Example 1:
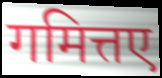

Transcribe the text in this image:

गमित्तए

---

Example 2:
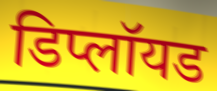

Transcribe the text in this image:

डिप्लॉयड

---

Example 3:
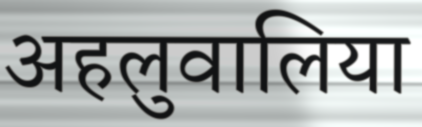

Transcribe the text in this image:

अहलुवालिया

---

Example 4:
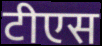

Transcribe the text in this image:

टीएस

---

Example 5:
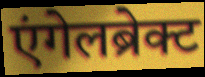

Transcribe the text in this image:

एंगेलब्रेक्ट